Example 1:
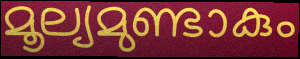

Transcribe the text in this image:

മൂല്യമുണ്ടാകും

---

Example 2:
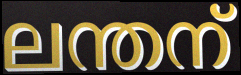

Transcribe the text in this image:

ലന്തന്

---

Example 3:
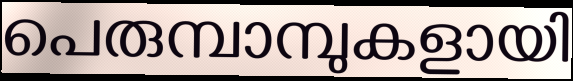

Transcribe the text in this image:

പെരുമ്പാമ്പുകളായി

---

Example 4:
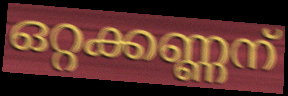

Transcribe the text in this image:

ഒറ്റക്കണ്ണന്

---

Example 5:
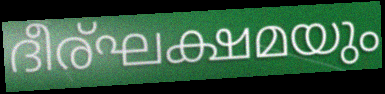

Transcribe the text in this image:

ദീര്ഘക്ഷമയും